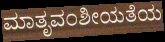
ಮಾತೃವಂಶೀಯತೆಯ